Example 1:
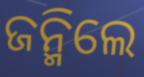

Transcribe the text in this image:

ଜନ୍ମିଲେ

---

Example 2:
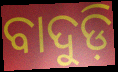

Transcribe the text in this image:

ବାଦୁଡ଼ି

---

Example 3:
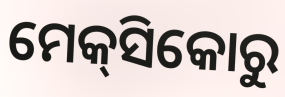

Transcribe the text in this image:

ମେକ୍‌ସିକୋରୁ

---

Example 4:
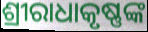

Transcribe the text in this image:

ଶ୍ରୀରାଧାକୃଷ୍ଣଙ୍କ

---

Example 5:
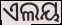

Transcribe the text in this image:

ଏଲୟ